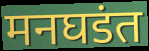
मनघडंत